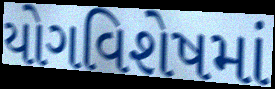
યોગવિશેષમાં